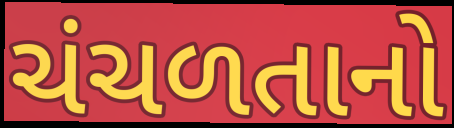
ચંચળતાનો